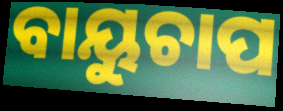
ବାୟୁଚାପ